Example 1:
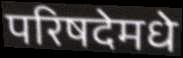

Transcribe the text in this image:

परिषदेमधे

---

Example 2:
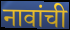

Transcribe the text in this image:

नावांची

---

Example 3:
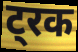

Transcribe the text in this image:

ट्रक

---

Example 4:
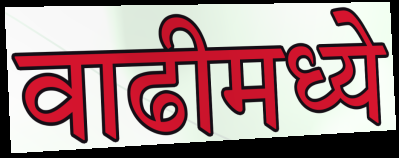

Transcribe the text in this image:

वाढीमध्ये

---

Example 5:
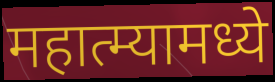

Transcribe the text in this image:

महात्म्यामध्ये